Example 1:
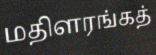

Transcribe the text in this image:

மதிளரங்கத்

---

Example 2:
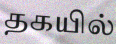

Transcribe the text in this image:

தகயில்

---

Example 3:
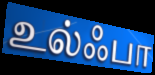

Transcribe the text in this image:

உல்ஃபா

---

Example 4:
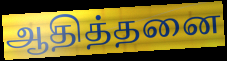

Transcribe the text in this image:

ஆதித்தனை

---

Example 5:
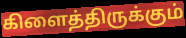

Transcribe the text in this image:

கிளைத்திருக்கும்